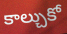
కాల్చుకో